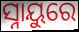
ସ୍ନାୟୁରେ